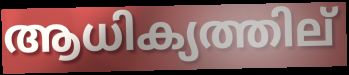
ആധിക്യത്തില്